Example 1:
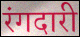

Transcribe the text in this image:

रंगदारी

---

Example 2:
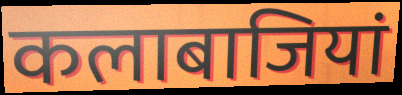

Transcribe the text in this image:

कलाबाजियां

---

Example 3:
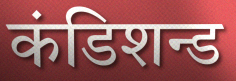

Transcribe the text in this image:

कंडिशन्ड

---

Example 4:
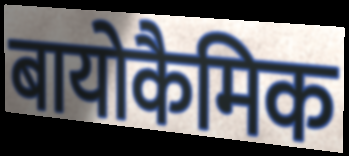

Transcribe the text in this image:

बायोकैमिक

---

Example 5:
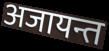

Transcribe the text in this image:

अजायन्त